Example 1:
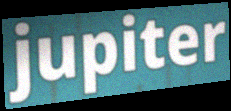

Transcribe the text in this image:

jupiter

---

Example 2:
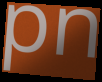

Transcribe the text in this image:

pn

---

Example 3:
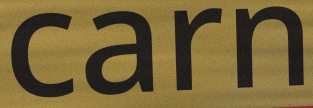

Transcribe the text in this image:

carn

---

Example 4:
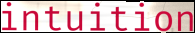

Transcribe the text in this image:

intuition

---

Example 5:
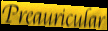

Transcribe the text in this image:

Preauricular